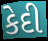
કેદી